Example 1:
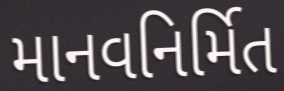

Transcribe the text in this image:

માનવનિર્મિત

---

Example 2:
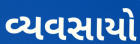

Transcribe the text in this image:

વ્યવસાયો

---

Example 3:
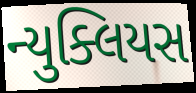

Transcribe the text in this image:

ન્યુક્લિયસ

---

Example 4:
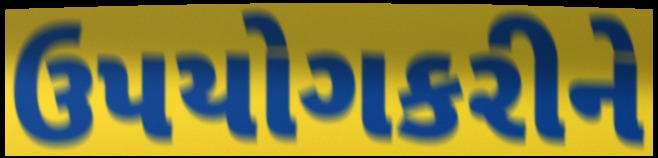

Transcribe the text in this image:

ઉપયોગકરીને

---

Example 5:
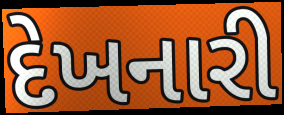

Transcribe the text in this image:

દેખનારી